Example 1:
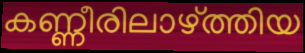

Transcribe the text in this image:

കണ്ണീരിലാഴ്ത്തിയ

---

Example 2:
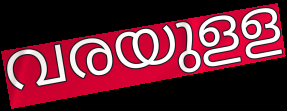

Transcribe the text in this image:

വരയുളള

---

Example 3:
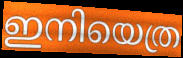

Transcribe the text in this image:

ഇനിയെത്ര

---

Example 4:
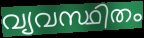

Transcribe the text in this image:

വ്യവസ്ഥിതം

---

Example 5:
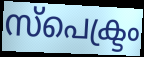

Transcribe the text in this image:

സ്പെക്ട്രം